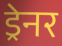
ड्रेनर